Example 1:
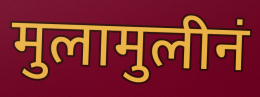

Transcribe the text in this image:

मुलामुलीनं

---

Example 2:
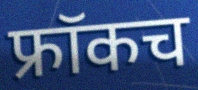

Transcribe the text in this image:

फ्रॉकच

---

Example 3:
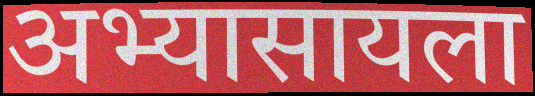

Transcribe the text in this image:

अभ्यासायला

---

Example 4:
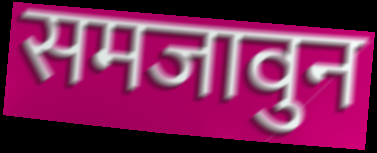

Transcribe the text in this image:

समजावुन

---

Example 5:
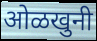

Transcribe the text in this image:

ओळखुनी